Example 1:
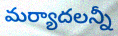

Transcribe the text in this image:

మర్యాదలన్నీ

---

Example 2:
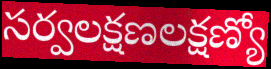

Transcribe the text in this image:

సర్వలక్షణలక్షణ్యో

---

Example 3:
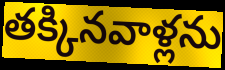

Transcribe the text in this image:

తక్కినవాళ్లను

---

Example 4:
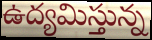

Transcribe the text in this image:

ఉద్యమిస్తున్న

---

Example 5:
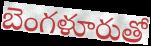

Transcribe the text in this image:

బెంగళూరుతో